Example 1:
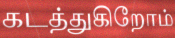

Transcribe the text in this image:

கடத்துகிறோம்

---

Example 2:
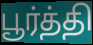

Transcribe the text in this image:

பூர்த்தி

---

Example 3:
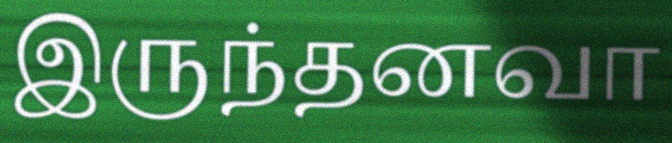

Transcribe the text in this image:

இருந்தனவா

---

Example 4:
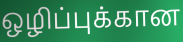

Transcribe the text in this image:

ஒழிப்புக்கான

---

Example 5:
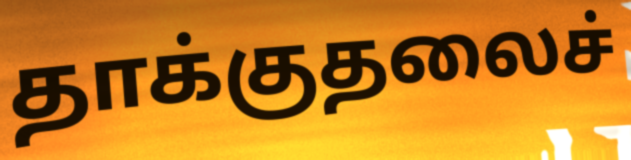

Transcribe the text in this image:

தாக்குதலைச்